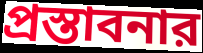
প্রস্তাবনার